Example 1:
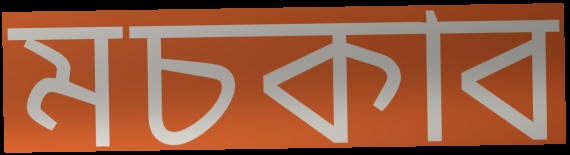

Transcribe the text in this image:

মচকাব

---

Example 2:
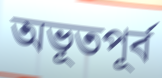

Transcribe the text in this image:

অভূতপূর্ব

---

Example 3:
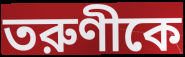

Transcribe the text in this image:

তরুণীকে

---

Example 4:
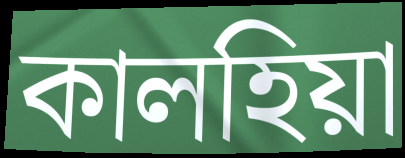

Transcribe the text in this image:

কালহিয়া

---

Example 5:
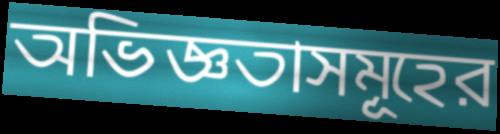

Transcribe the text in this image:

অভিজ্ঞতাসমূহের